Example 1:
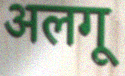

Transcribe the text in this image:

अलगू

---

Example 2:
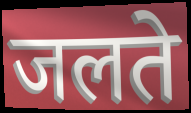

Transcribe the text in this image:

जलते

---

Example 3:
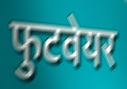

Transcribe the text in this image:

फुटवेयर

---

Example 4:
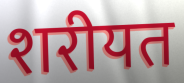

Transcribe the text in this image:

शरीयत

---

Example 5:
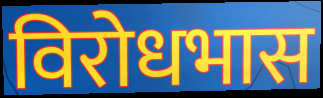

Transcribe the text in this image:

विरोधभास